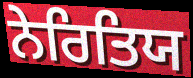
ਨੇਰਿਤਿਯ